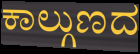
ಕಾಲ್ಗುಣದ